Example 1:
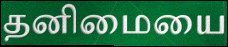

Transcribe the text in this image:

தனிமையை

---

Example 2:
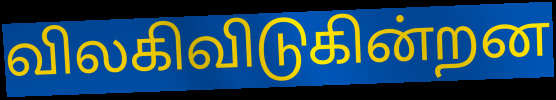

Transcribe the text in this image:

விலகிவிடுகின்றன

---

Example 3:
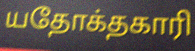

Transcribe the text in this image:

யதோக்தகாரி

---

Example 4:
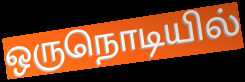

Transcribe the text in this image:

ஒருநொடியில்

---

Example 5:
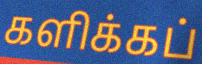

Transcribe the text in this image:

களிக்கப்